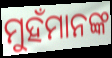
ମୁହଁମାନଙ୍କ